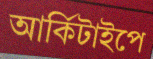
আর্কিটাইপে